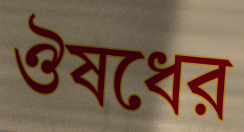
ঔষধের